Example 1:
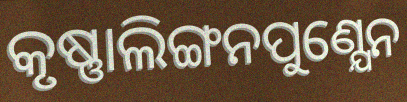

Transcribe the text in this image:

କୃଷ୍ଣାଲିଙ୍ଗନପୁଣ୍ଯେନ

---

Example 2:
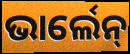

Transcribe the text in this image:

ଭାର୍ଲେନ୍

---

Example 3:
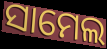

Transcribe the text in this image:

ସାମେଲ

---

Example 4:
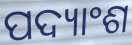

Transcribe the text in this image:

ପଦ୍ୟାଂଶ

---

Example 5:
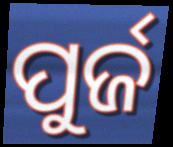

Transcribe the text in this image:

ପୁର୍ଜ